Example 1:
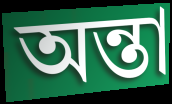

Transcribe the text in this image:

অন্তা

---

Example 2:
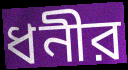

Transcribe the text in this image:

ধনীর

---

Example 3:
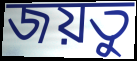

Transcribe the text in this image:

জয়তু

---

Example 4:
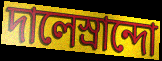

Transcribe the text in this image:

দালেস্রান্দো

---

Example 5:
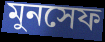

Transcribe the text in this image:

মুনসেফ